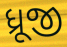
ધ્રૂજી